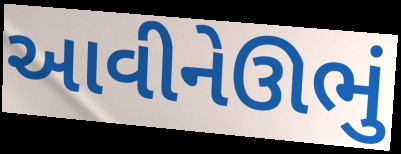
આવીનેઊભું